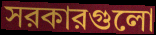
সরকারগুলো